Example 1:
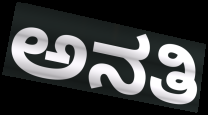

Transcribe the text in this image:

ಅನತಿ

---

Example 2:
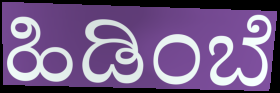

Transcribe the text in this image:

ಹಿಡಿಂಬೆ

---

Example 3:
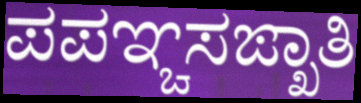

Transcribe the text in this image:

ಪಪಞ್ಚಸಙ್ಖಾತಿ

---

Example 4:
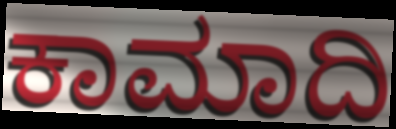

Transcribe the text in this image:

ಕಾಮಾದಿ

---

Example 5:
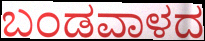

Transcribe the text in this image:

ಬಂಡವಾಳದ